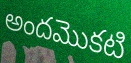
అందమొకటి